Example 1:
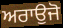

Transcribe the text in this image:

ਅਰਾਉਜੋ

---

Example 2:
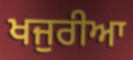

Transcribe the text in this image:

ਖਜੁਰੀਆ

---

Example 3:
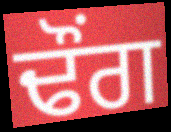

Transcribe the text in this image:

ਢੌਂਗ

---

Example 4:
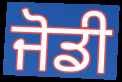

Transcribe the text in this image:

ਜੋਡੀ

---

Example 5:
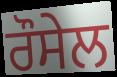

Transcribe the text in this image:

ਰੌਸੇਲ